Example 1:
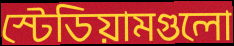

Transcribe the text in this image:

স্টেডিয়ামগুলো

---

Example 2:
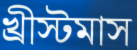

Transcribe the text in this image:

খ্রীস্টমাস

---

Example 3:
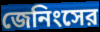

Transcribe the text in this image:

জেনিংসের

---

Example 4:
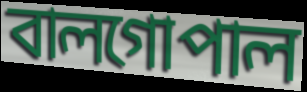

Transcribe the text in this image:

বালগোপাল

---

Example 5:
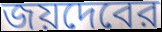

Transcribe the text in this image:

জয়দেবের